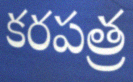
కరపత్ర